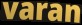
varan